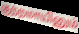
குற்றமாயினும்